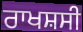
ਰਾਖਸ਼ਸੀ